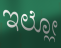
ಇಲ್ಲೋ